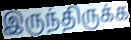
இருந்திருக்க